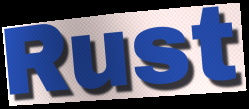
Rust